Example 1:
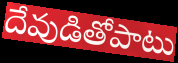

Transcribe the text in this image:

దేవుడితోపాటు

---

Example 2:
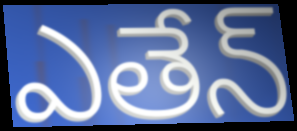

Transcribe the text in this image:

ఎతేన్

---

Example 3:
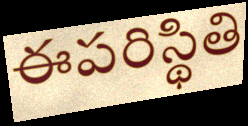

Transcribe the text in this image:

ఈపరిస్థితి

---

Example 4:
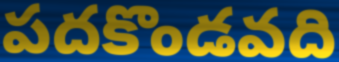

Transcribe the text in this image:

పదకొండవది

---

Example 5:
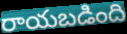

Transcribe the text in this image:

రాయబడింది